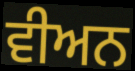
ਵੀਅਨ